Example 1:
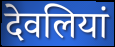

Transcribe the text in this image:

देवलियां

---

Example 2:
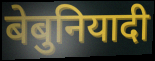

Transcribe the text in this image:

बेबुनियादी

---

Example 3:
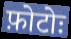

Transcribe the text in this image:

फ़ोटोः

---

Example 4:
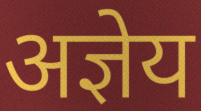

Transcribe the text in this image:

अज्ञेय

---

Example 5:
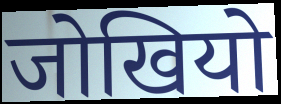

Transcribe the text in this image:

जोखियो